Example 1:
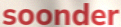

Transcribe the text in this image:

soonder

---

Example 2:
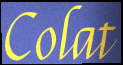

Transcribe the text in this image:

Colat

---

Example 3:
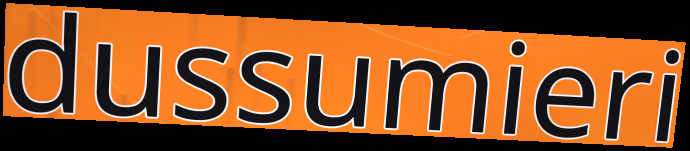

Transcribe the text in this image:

dussumieri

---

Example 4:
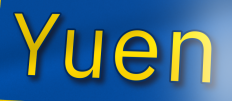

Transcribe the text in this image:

Yuen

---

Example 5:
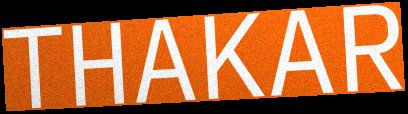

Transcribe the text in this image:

THAKAR